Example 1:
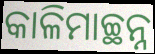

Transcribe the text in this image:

କାଳିମାଚ୍ଛନ୍ନ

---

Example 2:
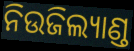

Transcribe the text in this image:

ନିଉଜିଲ୍ୟାଣ୍ଡ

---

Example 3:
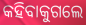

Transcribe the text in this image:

କହିବାକୁଗଲେ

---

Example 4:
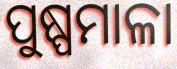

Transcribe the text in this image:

ପୁଷ୍ପମାଳା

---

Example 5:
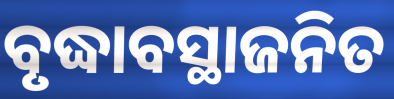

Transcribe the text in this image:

ବୃଦ୍ଧାବସ୍ଥାଜନିତ